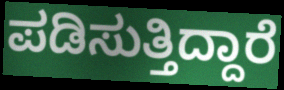
ಪಡಿಸುತ್ತಿದ್ದಾರೆ